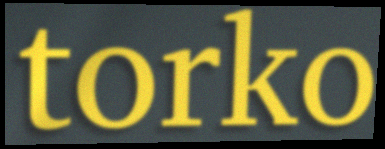
torko